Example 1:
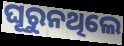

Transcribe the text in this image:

ଘୂରୁନଥିଲେ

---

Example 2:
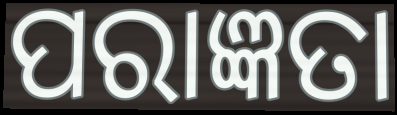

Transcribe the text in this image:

ପରାଜ୍ଞତା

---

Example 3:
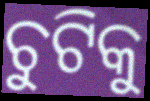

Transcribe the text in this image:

ଚୁଟିକୁ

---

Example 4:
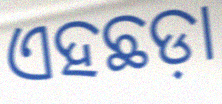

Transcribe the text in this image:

ଏହଛଡ଼ା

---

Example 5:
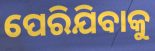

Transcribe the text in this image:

ପେରିଯିବାକୁ